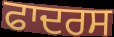
ਫਾਦਰਸ